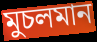
মুচলমান